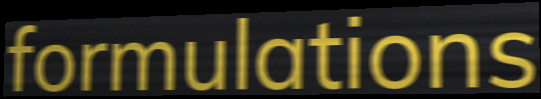
formulations